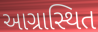
આગ્રાસ્થિત